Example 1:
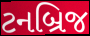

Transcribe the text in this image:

ટનબ્રિજ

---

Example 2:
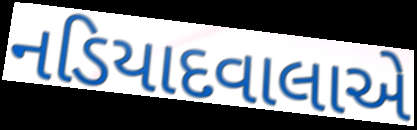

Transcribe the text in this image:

નડિયાદવાલાએ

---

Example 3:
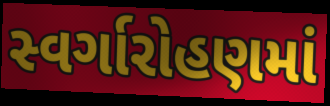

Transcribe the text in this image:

સ્વર્ગારોહણમાં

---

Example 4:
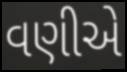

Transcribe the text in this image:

વણીએ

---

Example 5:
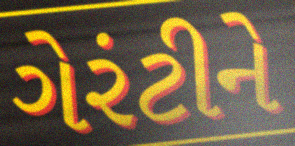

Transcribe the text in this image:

ગેરંટીને